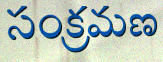
సంక్రమణ